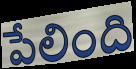
పేలింది